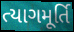
ત્યાગમૂર્તિ